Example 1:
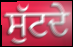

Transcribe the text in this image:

ਸੁੱਟਦੇ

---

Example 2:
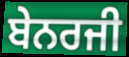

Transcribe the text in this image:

ਬੇਨਰਜੀ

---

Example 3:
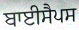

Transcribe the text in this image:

ਬਾਈਸੈਪਸ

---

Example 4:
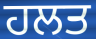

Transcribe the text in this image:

ਹਲਤ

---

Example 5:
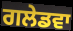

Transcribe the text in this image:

ਗਲੇਡਵਾ